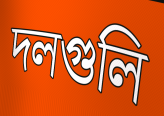
দলগুলি